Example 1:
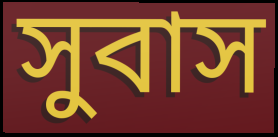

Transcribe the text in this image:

সুবাস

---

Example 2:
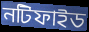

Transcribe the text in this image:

নটিফাইড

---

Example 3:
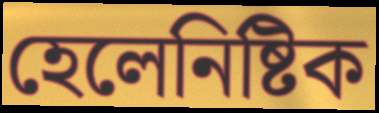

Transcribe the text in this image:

হেলেনিষ্টিক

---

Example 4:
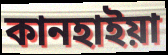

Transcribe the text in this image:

কানহাইয়া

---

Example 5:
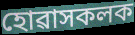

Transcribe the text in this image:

হোৱাসকলক